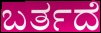
ಬರ್ತದೆ